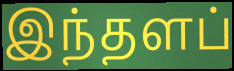
இந்தளப்